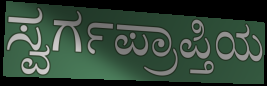
ಸ್ವರ್ಗಪ್ರಾಪ್ತಿಯ